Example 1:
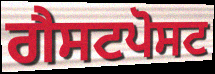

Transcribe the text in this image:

ਗੈਸਟਪੋਸਟ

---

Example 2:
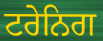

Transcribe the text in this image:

ਟਰੇਨਿਗ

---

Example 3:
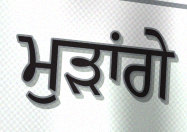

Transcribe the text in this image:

ਮੁੜਾਂਗੇ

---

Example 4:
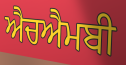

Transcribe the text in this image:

ਐਚਐਮਬੀ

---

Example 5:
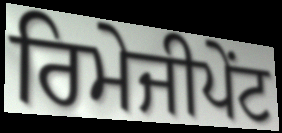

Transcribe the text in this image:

ਰਿਮੇਜੀਪੇਂਟ